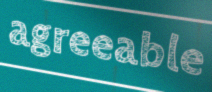
agreeable